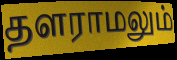
தளராமலும்